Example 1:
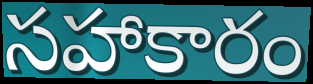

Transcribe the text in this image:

సహాకారం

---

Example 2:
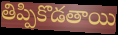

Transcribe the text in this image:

తిప్పికొడతాయి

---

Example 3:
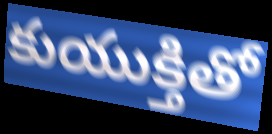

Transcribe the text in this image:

కుయుక్తితో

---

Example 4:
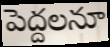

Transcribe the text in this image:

పెద్దలనూ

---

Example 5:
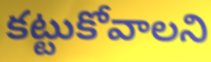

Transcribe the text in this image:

కట్టుకోవాలని